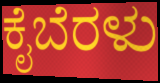
ಕೈಬೆರಳು